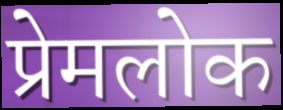
प्रेमलोक